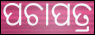
ପଚାପତ୍ର